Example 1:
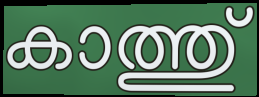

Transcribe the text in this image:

കാത്തു്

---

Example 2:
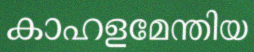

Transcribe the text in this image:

കാഹളമേന്തിയ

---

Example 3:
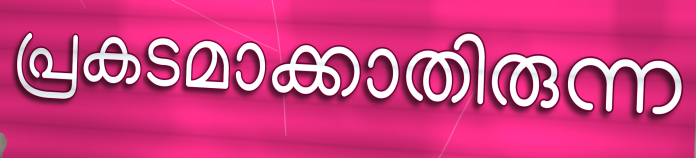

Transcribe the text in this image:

പ്രകടമാക്കാതിരുന്ന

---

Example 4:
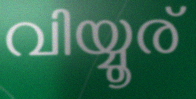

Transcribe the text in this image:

വിയ്യൂര്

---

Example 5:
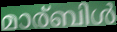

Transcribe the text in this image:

മാര്ബിൾ